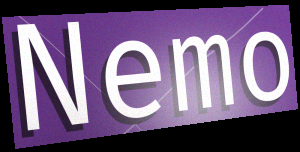
Nemo